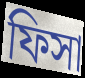
ফিসা